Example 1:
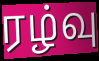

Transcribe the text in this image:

ரழ்வு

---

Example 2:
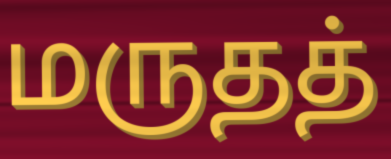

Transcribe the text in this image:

மருதத்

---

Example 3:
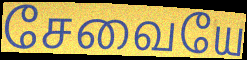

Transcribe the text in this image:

சேவையே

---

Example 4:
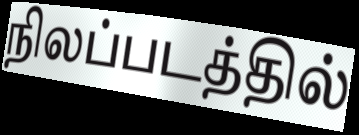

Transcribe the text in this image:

நிலப்படத்தில்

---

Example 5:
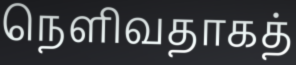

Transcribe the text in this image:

நெளிவதாகத்